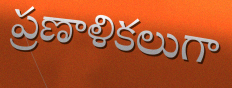
ప్రణాళికలుగా